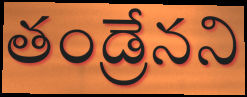
తండ్రేనని